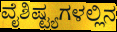
ವೈಶಿಷ್ಟ್ಯಗಳಲ್ಲಿನ